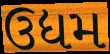
ઉદ્યમ